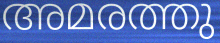
അമരത്തു